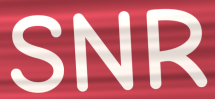
SNR